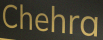
Chehra